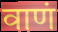
वाणं